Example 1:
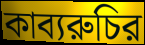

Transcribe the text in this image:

কাব্যরুচির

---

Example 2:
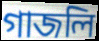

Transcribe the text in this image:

গাজলি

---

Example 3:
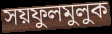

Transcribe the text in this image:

সয়ফুলমুলুক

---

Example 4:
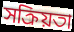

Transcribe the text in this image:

সক্রিয়তা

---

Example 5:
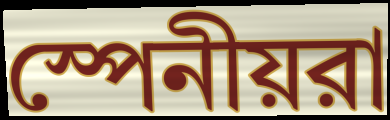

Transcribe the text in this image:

স্পেনীয়রা